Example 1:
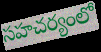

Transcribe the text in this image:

సహచర్యంలో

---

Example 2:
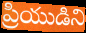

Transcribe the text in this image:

ప్రియుడిని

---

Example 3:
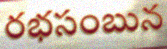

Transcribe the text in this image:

రభసంబున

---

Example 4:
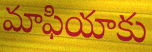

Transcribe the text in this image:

మాఫియాకు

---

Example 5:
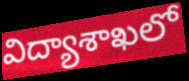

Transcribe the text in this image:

విద్యాశాఖలో